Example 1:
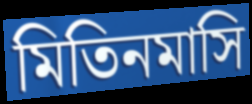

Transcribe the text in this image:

মিতিনমাসি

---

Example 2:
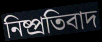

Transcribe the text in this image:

নিষ্প্রতিবাদ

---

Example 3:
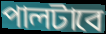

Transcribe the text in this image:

পালটাবে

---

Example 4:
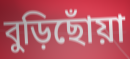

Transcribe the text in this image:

বুড়িছোঁয়া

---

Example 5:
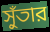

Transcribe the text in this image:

সুঁতার